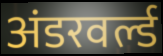
अंडरवर्ल्ड